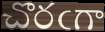
చొరఁగా